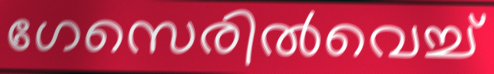
ഗേസെരിൽവെച്ച്